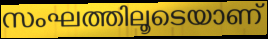
സംഘത്തിലൂടെയാണ്